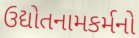
ઉદ્યોતનામકર્મનો